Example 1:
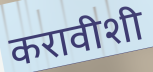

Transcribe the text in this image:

करावीशी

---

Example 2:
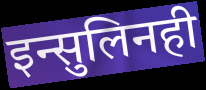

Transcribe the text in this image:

इन्सुलिनही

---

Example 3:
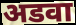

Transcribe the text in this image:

अडवा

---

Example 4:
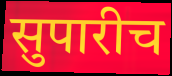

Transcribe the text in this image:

सुपारीच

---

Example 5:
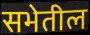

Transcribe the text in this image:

सभेतील